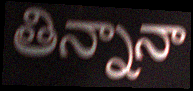
తిన్నానా